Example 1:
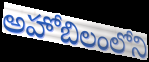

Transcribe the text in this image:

అహోబిలంలోని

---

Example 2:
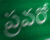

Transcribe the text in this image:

ప్రవరో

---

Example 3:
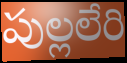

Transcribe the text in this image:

పుల్లలేరి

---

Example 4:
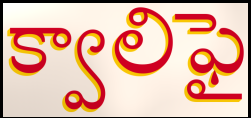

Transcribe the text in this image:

క్వాలిఫై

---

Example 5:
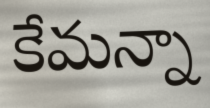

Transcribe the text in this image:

కేమన్నా